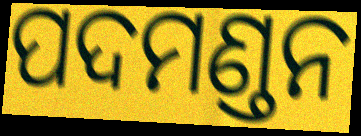
ପଦମଣ୍ଡନ